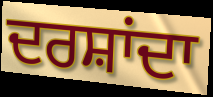
ਦਰਸ਼ਾਂਦਾ